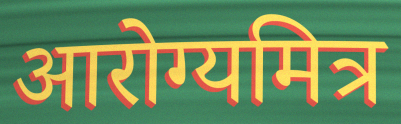
आरोग्यमित्र